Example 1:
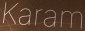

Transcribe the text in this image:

Karam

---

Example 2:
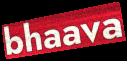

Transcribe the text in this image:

bhaava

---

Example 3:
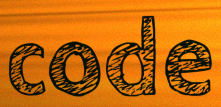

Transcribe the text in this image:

code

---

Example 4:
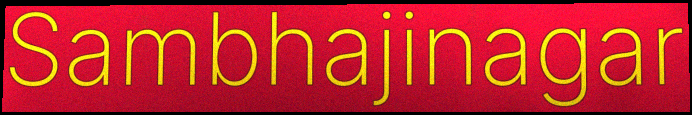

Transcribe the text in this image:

Sambhajinagar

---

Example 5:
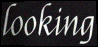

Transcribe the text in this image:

looking